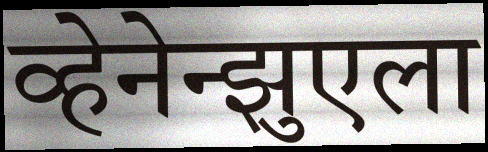
व्हेनेन्झुएला